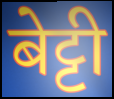
बेट्टी